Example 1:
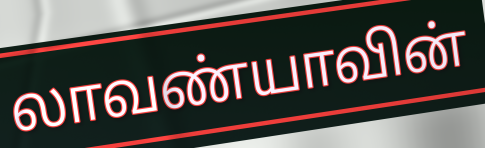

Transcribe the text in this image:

லாவண்யாவின்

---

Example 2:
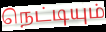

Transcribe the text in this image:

நெட்டியும்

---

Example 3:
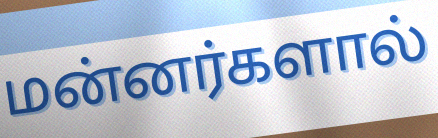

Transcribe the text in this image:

மன்னர்களால்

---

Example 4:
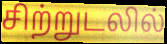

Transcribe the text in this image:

சிற்றுடலில்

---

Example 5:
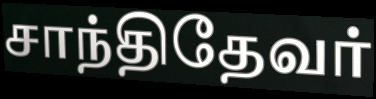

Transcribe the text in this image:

சாந்திதேவர்